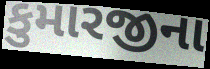
કુમારજીના